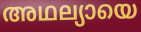
അഥല്യായെ